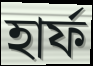
হার্ফ